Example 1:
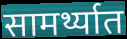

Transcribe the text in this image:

सामर्थ्यात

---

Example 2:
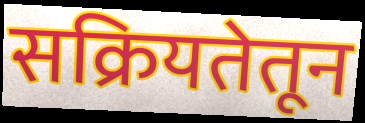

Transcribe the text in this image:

सक्रियतेतून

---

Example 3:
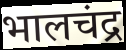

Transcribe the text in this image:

भालचंद्र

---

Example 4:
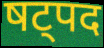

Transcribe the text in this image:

षट्पद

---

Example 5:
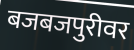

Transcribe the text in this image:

बजबजपुरीवर